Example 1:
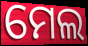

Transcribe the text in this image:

ମେଲ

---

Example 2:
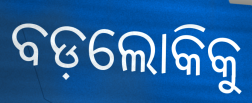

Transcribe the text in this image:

ବଡ଼ଲୋକିକୁ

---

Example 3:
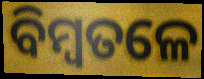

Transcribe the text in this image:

ବିମ୍ବତଳେ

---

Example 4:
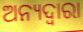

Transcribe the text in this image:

ଅନ୍ୟଦ୍ୱାରା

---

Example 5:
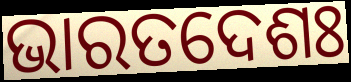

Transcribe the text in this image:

ଭାରତଦେଶଃ